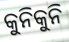
କୁନିକୁନି